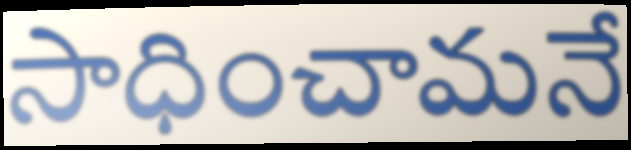
సాధించామనే